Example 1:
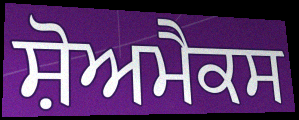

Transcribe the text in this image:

ਸ਼ੋਅਮੈਕਸ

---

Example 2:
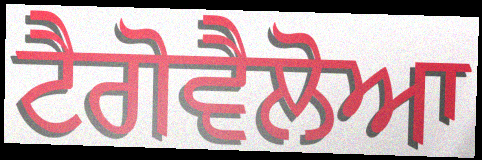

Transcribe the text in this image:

ਟੈਗੋਵੈਲੋਆ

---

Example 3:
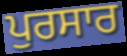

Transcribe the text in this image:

ਪੁਰਸਾਰ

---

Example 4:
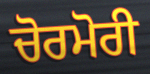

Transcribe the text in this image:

ਚੋਰਮੋਰੀ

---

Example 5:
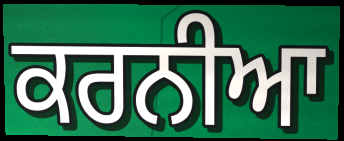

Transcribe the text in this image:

ਕਰਨੀਆ